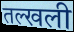
तल्खली